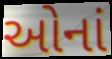
ઓનાં